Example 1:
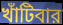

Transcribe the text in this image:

খাঁটিবার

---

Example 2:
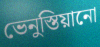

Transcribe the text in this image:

ভেনুস্তিয়ানো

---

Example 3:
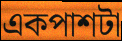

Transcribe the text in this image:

একপাশটা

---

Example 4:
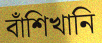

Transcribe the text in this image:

বাঁশিখানি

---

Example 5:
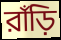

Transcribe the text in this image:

রাঁড়ি